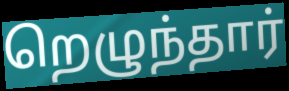
றெழுந்தார்